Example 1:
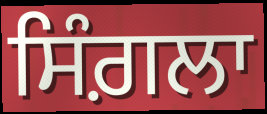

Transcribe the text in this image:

ਸਿੰਗ਼ਲਾ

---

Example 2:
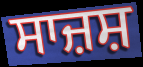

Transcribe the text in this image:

ਸਾਜ਼ਸ਼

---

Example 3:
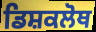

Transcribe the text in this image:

ਡਿਸ਼ਕਲੋਥ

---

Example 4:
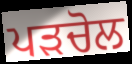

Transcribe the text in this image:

ਪੜਚੋਲ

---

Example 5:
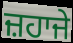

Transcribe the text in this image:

ਜ਼ਹਾਜੇ